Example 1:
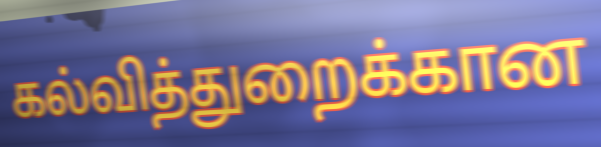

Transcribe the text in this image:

கல்வித்துறைக்கான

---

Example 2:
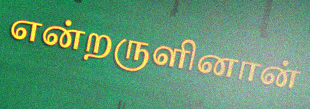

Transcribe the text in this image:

என்றருளினான்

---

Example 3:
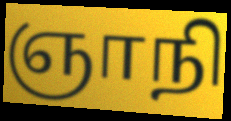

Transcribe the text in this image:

ஞாநி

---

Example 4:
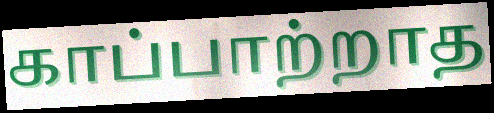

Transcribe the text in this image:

காப்பாற்றாத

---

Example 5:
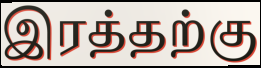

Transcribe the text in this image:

இரத்தற்கு